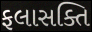
ફલાસક્તિ